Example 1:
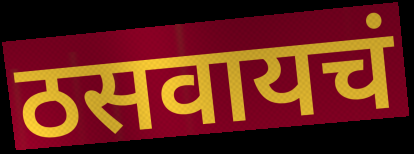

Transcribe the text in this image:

ठसवायचं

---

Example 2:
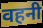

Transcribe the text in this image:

वहनी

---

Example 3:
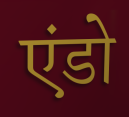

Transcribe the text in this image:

एंडो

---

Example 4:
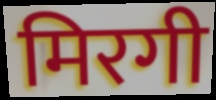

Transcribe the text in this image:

मिरगी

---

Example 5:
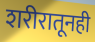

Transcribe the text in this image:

शरीरातूनही